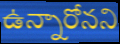
ఉన్నారోనని